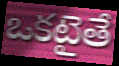
ఒకటైతే